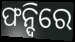
ଫନ୍ଦିରେ